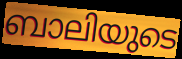
ബാലിയുടെ